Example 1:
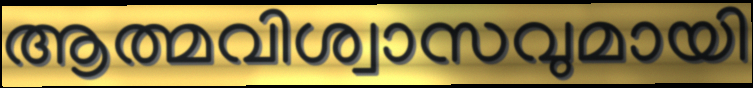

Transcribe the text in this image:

ആത്മവിശ്വാസവുമായി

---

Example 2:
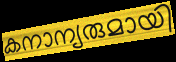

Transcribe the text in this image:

കനാന്യരുമായി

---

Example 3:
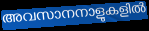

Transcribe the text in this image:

അവസാനനാളുകളിൽ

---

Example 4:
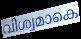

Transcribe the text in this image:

വിശ്വമാകെ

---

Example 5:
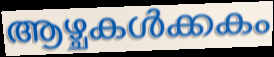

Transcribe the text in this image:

ആഴ്ചകൾക്കകം